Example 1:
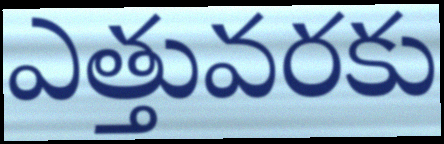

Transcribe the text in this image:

ఎత్తువరకు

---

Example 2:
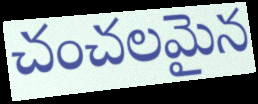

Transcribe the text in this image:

చంచలమైన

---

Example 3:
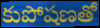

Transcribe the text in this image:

కుపోషణతో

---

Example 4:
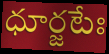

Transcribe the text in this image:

ధూర్జటేః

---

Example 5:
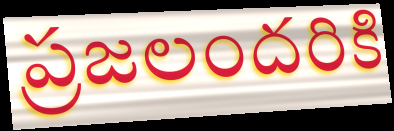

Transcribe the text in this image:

ప్రజలందరికి